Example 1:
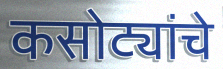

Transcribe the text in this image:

कसोट्यांचे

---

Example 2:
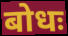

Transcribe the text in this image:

बोधः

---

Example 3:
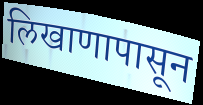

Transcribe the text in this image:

लिखाणापासून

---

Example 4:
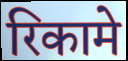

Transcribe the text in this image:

रिकामे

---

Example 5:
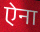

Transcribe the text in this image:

ऐना